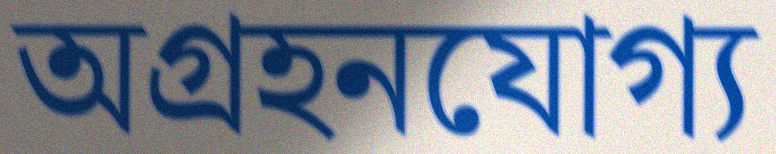
অগ্রহনযোগ্য